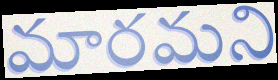
మారమని